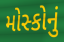
મોસ્કોનું